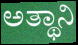
ಅತ್ಥಾನಿ